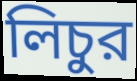
লিচুর